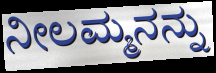
ನೀಲಮ್ಮನನ್ನು